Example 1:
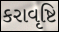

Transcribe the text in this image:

કરાવૃષ્ટિ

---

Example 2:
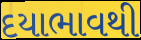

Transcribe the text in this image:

દયાભાવથી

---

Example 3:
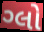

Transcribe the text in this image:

ગ્લો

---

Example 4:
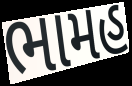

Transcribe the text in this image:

ભામહ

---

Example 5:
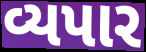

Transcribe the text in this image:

વ્યપાર